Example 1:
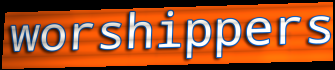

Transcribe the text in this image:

worshippers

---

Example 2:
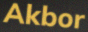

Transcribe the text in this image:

Akbor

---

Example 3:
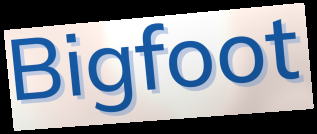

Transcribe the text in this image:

Bigfoot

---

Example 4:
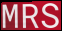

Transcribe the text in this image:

MRS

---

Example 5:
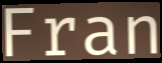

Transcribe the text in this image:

Fran